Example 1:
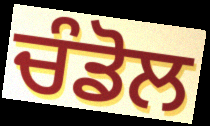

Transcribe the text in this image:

ਚੰਡੋਲ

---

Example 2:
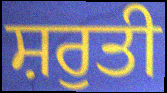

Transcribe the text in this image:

ਸ਼ਰੁਤੀ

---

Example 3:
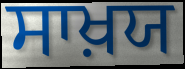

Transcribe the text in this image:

ਸਾਖ਼ਯ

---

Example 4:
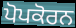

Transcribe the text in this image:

ਪੋਪਕੋਰਨ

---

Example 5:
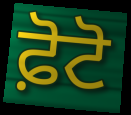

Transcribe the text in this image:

ਫ਼ੋਟੋ